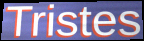
Tristes